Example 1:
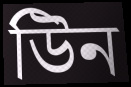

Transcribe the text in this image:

উিন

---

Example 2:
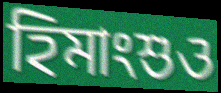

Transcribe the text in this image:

হিমাংশুও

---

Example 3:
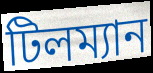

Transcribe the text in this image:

টিলম্যান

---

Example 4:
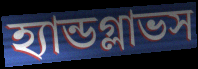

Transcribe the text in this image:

হ্যান্ডগ্লাভস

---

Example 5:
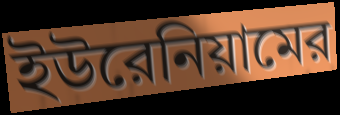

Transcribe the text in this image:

ইউরেনিয়ামের